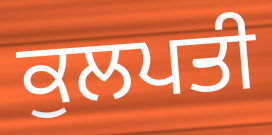
ਕੁਲਪਤੀ